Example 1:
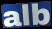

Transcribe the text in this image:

alb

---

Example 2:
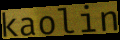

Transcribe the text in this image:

kaolin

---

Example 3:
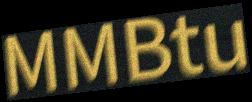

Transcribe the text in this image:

MMBtu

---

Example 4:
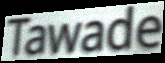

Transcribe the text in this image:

Tawade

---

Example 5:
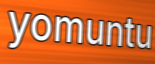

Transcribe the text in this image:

yomuntu